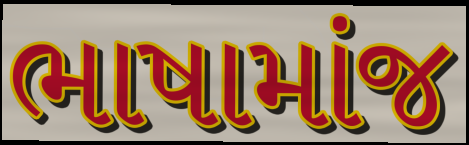
ભાષામાંજ